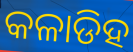
କଳାଡିହ